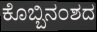
ಕೊಬ್ಬಿನಂಶದ